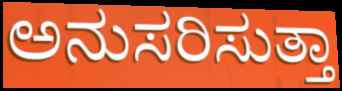
ಅನುಸರಿಸುತ್ತಾ